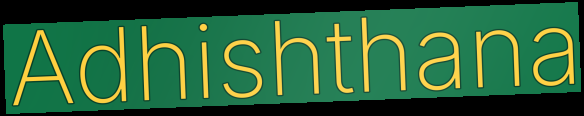
Adhishthana